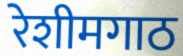
रेशीमगाठ